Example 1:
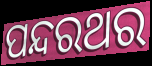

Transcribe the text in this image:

ପନ୍ଦରଥର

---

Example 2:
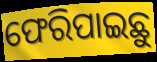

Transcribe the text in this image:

ଫେରିପାଇଛୁ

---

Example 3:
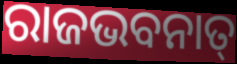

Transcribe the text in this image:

ରାଜଭବନାତ୍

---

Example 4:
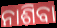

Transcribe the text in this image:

ନାଶିବା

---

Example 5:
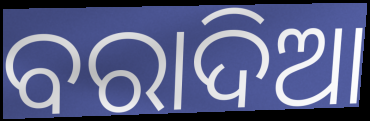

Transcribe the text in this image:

ବରାଦିଆ